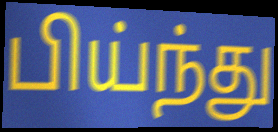
பிய்ந்து